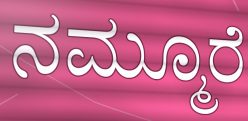
ನಮ್ಮೂರೆ